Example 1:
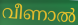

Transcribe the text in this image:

വീണാൽ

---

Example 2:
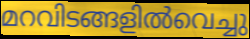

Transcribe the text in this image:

മറവിടങ്ങളിൽവെച്ചു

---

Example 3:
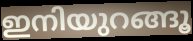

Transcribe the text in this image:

ഇനിയുറങ്ങൂ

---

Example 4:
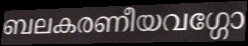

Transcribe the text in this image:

ബലകരണീയവഗ്ഗോ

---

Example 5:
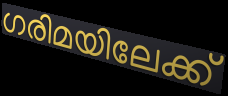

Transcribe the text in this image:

ഗരിമയിലേക്ക്